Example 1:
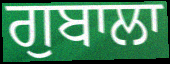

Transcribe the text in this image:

ਗੁਬਾਲਾ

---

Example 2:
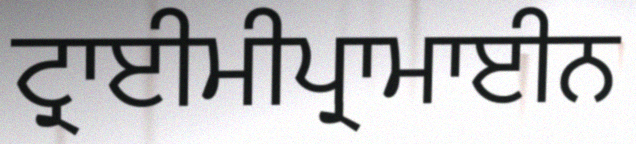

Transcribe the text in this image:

ਟ੍ਰਾਈਮੀਪ੍ਰਾਮਾਈਨ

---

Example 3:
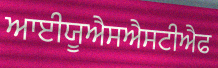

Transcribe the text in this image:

ਆਈਯੂਐਸਐਸਟੀਐਫ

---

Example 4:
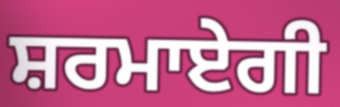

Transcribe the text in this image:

ਸ਼ਰਮਾਏਗੀ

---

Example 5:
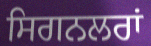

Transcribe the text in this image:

ਸਿਗਨਲਰਾਂ